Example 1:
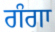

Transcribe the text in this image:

ਗੰਗਾ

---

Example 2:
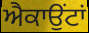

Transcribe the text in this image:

ਐਕਾਉਂਟਾਂ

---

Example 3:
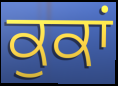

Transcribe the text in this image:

ਕੁਕਾਂ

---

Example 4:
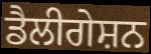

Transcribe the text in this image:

ਡੈਲੀਗੇਸ਼ਨ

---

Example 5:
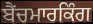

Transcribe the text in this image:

ਬੈਂਚਮਾਰਕਿੰਗ